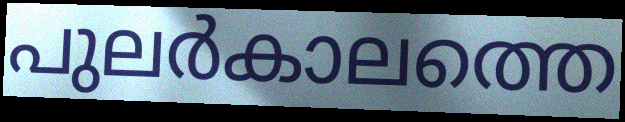
പുലർകാലത്തെ